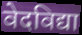
वेदविद्या